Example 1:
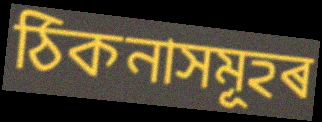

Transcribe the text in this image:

ঠিকনাসমূহৰ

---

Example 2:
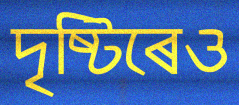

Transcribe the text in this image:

দৃষ্টিৰেও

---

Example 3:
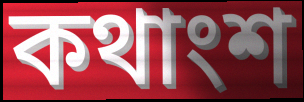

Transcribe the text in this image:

কথাংশ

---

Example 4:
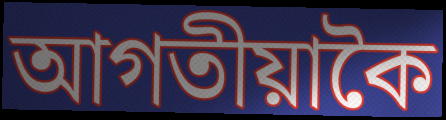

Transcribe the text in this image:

আগতীয়াকৈ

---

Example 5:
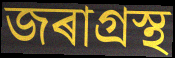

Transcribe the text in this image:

জৰাগ্ৰস্থ